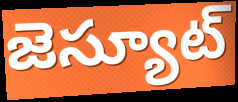
జెస్యూట్